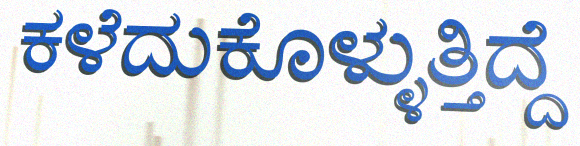
ಕಳೆದುಕೊಳ್ಳುತ್ತಿದ್ದೆ